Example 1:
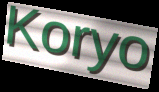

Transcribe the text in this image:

Koryo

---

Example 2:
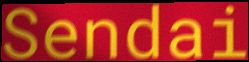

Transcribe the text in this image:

Sendai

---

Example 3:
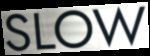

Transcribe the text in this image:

SLOW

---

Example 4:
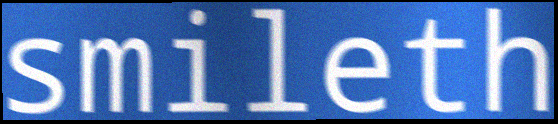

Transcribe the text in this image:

smileth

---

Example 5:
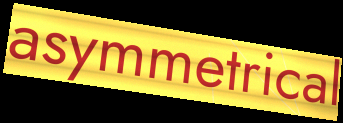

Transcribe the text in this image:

asymmetrical